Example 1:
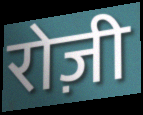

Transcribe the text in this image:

रोज़ी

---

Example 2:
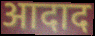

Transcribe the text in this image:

आदाद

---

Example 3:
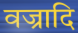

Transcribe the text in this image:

वज्रादि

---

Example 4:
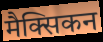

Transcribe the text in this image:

मैक्सिकन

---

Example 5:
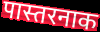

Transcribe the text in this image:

पास्तरनाक